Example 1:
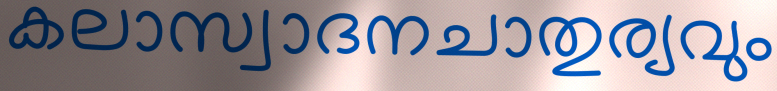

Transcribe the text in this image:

കലാസ്വാദനചാതുര്യവും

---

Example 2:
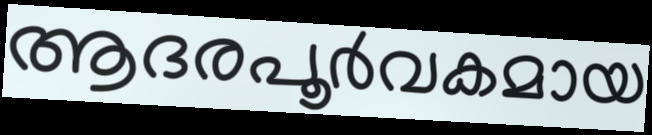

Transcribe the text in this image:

ആദരപൂർവകമായ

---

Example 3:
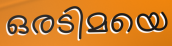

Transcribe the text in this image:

ഒരടിമയെ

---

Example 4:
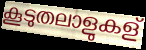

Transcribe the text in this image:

കൂടുതലാളുകള്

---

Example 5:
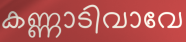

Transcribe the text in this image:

കണ്ണാടിവാവേ